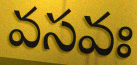
వసవః